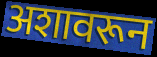
अशावरून